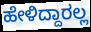
ಹೇಳಿದ್ದಾರಲ್ಲ